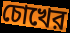
চোখের